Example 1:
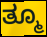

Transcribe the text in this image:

ತ್ಮೂ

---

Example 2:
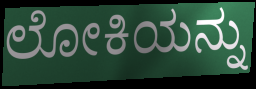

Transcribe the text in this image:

ಲೋಕಿಯನ್ನು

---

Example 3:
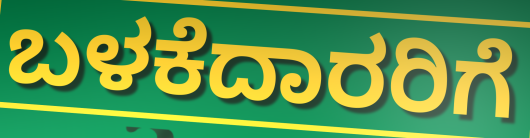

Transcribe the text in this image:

ಬಳಕೆದಾರರಿಗೆ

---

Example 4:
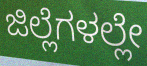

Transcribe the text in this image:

ಜಿಲ್ಲೆಗಳಲ್ಲೇ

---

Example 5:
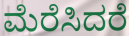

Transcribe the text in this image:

ಮೆರೆಸಿದರೆ